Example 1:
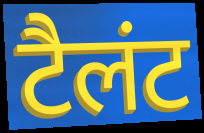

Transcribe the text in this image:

टैलंट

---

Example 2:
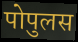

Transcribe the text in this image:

पोपुलस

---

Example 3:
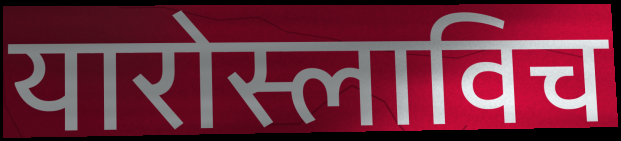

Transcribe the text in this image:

यारोस्लाविच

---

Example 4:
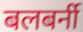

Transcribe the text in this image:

बलबर्नी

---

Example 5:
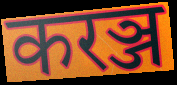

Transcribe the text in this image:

करञ्ज